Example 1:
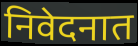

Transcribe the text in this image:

निवेदनात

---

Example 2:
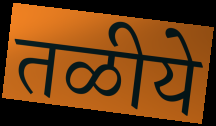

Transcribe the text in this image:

तळीये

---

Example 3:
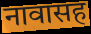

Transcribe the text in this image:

नावासह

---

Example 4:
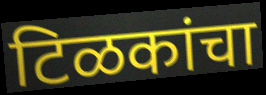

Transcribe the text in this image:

टिळकांचा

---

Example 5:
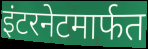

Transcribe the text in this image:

इंटरनेटमार्फत